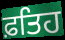
ਫ਼ਤਿਹ